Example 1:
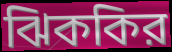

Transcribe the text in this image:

ঝিককির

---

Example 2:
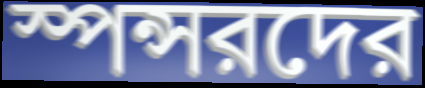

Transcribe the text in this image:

স্পন্সরদের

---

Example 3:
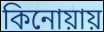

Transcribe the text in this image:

কিনোয়ায়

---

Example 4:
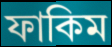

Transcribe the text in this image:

ফাকিম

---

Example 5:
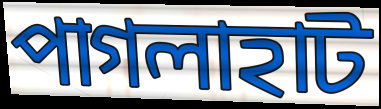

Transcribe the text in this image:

পাগলাহাট